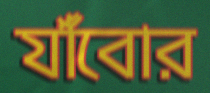
র্যাঁবোর